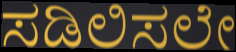
ಸಡಿಲಿಸಲೇ